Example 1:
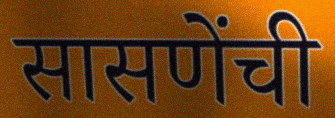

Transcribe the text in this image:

सासणेंची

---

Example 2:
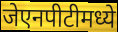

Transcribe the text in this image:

जेएनपीटीमध्ये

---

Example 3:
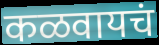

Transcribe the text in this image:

कळवायचं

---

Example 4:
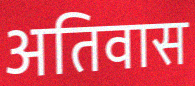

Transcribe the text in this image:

अतिवास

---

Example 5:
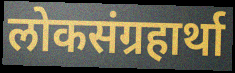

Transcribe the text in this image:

लोकसंग्रहार्था